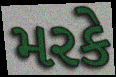
મરકે